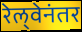
रेल्वेनंतर